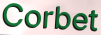
Corbet